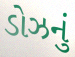
ડોઝનું